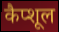
कैप्शूल